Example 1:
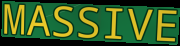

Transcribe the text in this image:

MASSIVE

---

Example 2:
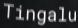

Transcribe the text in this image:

Tingalu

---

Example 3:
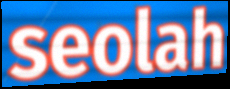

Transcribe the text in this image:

seolah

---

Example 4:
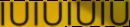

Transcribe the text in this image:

IUIUIUIU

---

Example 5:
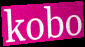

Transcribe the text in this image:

kobo